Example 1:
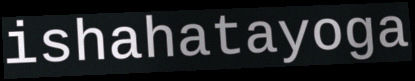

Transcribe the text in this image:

ishahatayoga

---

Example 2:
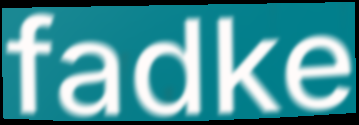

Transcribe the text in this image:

fadke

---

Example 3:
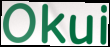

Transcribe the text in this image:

Okui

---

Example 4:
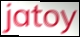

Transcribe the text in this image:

jatoy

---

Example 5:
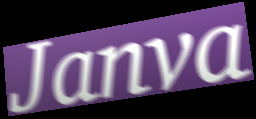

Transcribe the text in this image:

Janva